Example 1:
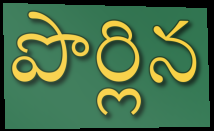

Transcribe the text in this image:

పొర్లిన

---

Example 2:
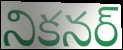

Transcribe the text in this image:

నికనర్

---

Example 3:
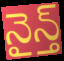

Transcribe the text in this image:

నైన్త్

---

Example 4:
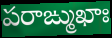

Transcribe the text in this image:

పరాఙ్ముఖాః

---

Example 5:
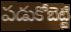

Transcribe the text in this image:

పడుకోబెట్టి